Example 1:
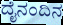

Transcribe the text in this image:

ದೈನಂದಿನ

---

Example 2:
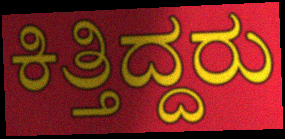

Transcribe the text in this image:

ಕಿತ್ತಿದ್ದರು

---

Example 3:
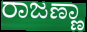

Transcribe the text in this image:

ರಾಜಣ್ಣಾ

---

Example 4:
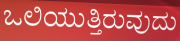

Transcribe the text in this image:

ಒಲಿಯುತ್ತಿರುವುದು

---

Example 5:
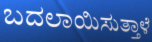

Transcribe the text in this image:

ಬದಲಾಯಿಸುತ್ತಾಳೆ